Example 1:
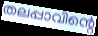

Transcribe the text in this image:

തലപ്പാവിന്റെ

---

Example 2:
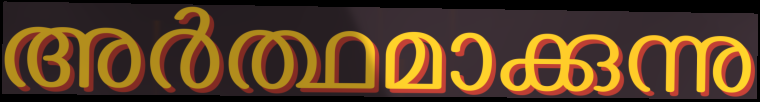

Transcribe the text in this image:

അർത്ഥമാക്കുന്നു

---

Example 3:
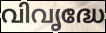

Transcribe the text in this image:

വിവൃദ്ധേ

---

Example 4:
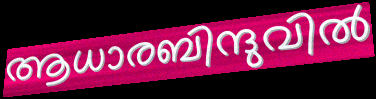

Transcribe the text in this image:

ആധാരബിന്ദുവിൽ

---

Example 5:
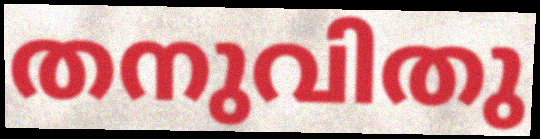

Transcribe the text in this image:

തനുവിതു